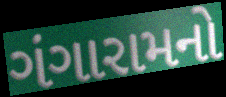
ગંગારામનો